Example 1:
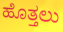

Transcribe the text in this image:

ಹೊತ್ತಲು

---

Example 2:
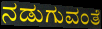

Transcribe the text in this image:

ನಡುಗುವಂತೆ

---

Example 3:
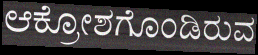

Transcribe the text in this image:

ಆಕ್ರೋಶಗೊಂಡಿರುವ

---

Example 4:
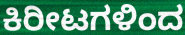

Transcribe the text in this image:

ಕಿರೀಟಗಳಿಂದ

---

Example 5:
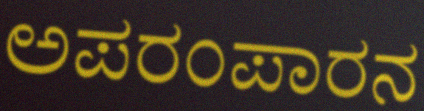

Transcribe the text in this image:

ಅಪರಂಪಾರನ